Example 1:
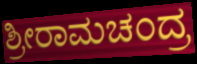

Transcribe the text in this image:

ಶ್ರೀರಾಮಚಂದ್ರ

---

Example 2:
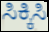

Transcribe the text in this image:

ಸಿಕ್ಕಿಸಿ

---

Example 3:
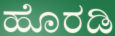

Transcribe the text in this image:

ಹೊರಡಿ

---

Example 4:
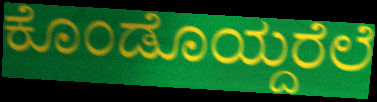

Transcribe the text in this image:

ಕೊಂಡೊಯ್ದರೆಲೆ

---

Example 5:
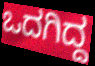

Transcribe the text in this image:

ಒದಗಿದ್ದ